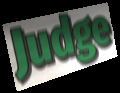
Judge